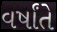
વર્ષાંતે